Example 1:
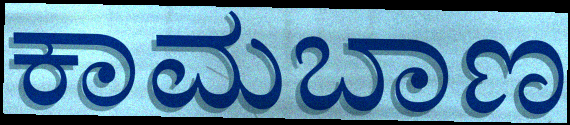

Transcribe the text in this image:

ಕಾಮಬಾಣ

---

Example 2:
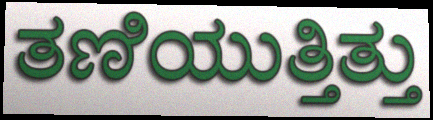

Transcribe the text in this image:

ತಣಿಯುತ್ತಿತ್ತು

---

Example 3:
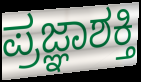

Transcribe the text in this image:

ಪ್ರಜ್ಞಾಶಕ್ತಿ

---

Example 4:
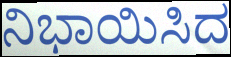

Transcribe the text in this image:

ನಿಭಾಯಿಸಿದ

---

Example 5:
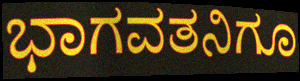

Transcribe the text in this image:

ಭಾಗವತನಿಗೂ